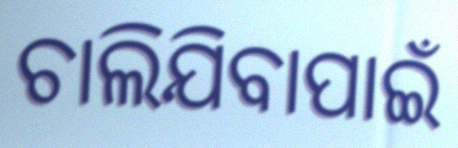
ଚାଲିଯିବାପାଇଁ